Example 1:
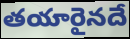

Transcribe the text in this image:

తయారైనదే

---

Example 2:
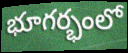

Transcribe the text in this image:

భూగర్భంలో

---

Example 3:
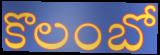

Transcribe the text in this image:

కొలంబో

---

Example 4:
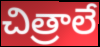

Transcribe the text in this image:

చిత్రాలే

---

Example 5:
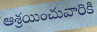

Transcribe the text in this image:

ఆశ్రయించువారికి